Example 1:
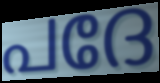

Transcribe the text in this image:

പദേ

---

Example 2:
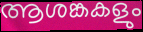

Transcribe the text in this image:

ആശങ്കകളും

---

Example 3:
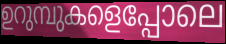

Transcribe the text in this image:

ഉറുമ്പുകളെപ്പോലെ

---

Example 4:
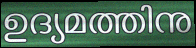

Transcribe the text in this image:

ഉദ്യമത്തിനു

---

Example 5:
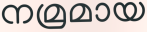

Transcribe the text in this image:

നമ്രമായ